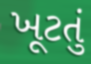
ખૂટતું